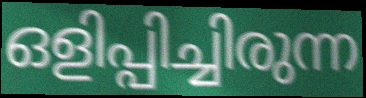
ഒളിപ്പിച്ചിരുന്ന